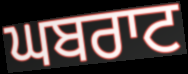
ਘਬਰਾਟ